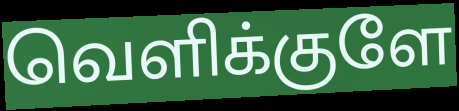
வெளிக்குளே